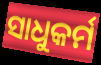
ସାଧୁକର୍ମ